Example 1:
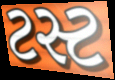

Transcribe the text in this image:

ટસ્ટ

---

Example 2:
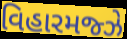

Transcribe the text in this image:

વિહારમજ્ઝે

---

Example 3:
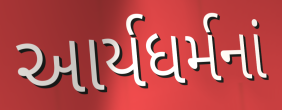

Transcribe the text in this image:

આર્યધર્મનાં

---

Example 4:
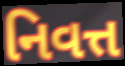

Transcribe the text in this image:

નિવત્ત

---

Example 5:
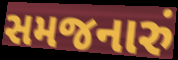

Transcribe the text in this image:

સમજનારું